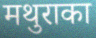
मथुराका